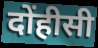
दोंहीसी